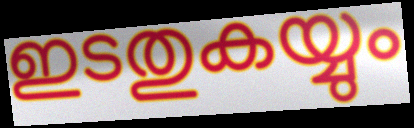
ഇടതുകയ്യും